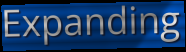
Expanding